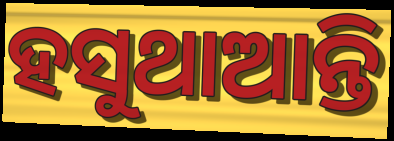
ହସୁଥାଆନ୍ତି